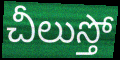
చీలుస్తో